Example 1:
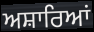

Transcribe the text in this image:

ਅਸ਼ਾਰਿਆਂ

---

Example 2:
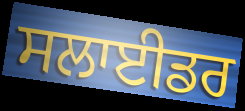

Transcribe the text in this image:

ਸਲਾਈਡਰ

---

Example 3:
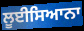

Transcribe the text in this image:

ਲੂਈਸਿਆਨਾ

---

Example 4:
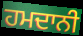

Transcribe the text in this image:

ਹਮਦਾਨੀ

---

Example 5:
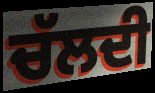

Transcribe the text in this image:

ਚੱਲਦੀ